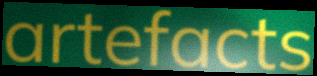
artefacts